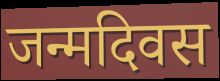
जन्मदिवस